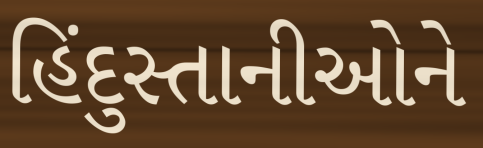
હિંદુસ્તાનીઓને